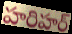
హరిహర్